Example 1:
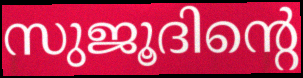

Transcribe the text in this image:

സുജൂദിന്റെ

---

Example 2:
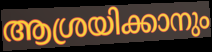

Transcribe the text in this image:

ആശ്രയിക്കാനും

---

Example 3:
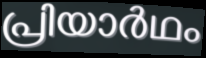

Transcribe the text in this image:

പ്രിയാർഥം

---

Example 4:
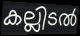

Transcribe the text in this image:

കല്ലിടൽ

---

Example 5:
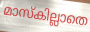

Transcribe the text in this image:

മാസ്കില്ലാതെ